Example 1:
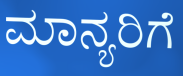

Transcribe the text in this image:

ಮಾನ್ಯರಿಗೆ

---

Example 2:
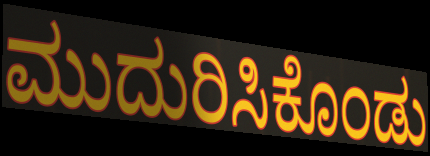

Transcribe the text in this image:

ಮುದುರಿಸಿಕೊಂಡು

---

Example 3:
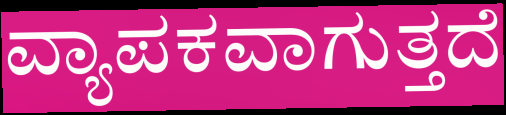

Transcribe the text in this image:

ವ್ಯಾಪಕವಾಗುತ್ತದೆ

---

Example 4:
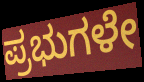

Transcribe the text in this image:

ಪ್ರಭುಗಳೇ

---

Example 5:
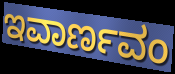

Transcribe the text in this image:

ಇವಾರ್ಣವಂ